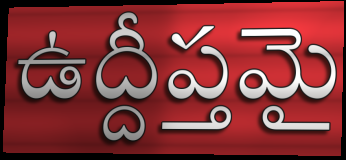
ఉద్దీప్తమై